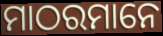
ମାଠରମାନେ